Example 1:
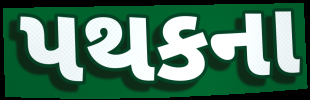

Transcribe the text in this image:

પથકના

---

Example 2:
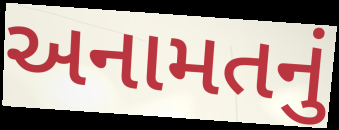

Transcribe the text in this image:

અનામતનું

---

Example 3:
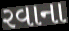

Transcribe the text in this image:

રવાના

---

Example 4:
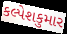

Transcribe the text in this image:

કલ્પેશકુમાર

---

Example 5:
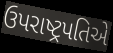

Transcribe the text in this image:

ઉપરાષ્ટ્રપતિએ